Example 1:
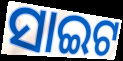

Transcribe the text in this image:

ସାଇଟ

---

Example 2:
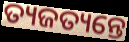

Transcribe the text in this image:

ତ୍ୟଜତ୍ୟନ୍ତେ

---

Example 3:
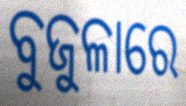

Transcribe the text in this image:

ବୁଜୁଳାରେ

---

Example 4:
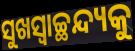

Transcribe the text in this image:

ସୁଖସ୍ଵାଚ୍ଛନ୍ଦ୍ୟକୁ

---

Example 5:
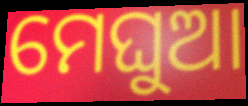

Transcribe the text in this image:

ମେଘୁଆ